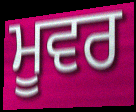
ਮੂਵਰ